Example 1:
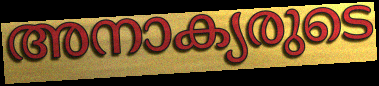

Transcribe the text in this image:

അനാക്യരുടെ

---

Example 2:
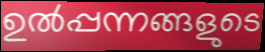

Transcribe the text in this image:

ഉൽപ്പന്നങ്ങളുടെ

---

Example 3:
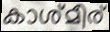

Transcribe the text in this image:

കാശ്മീര്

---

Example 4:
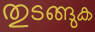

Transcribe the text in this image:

തുടങ്ങുക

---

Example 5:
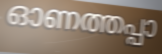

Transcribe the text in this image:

ഓണത്തപ്പാ